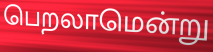
பெறலாமென்று